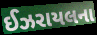
ઈઝરાયલના